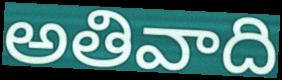
అతివాది